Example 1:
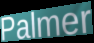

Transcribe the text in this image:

Palmer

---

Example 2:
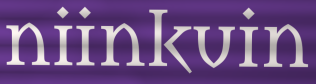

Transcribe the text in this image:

niinkuin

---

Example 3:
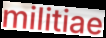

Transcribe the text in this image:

militiae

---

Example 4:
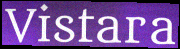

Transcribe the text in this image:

Vistara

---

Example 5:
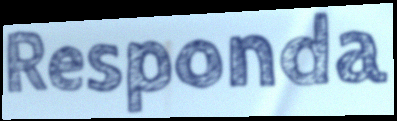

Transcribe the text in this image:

Responda